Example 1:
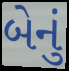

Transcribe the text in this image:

બેનું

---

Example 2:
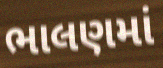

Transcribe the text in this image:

ભાલણમાં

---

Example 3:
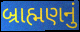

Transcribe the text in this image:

બ્રાહ્મણનું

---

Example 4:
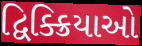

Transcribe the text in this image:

દ્વિક્ક્રિયાઓ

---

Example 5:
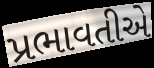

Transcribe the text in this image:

પ્રભાવતીએ